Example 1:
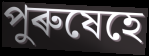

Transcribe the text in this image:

পুৰুষেহে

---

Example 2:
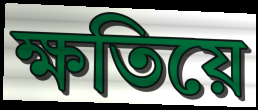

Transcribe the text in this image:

ক্ষতিয়ে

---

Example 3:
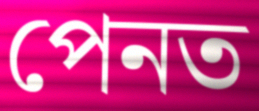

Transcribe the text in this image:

পেনত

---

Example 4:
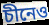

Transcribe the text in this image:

চীনেও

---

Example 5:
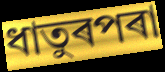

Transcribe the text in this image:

ধাতুৰপৰা